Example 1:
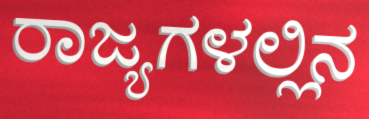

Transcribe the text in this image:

ರಾಜ್ಯಗಳಲ್ಲಿನ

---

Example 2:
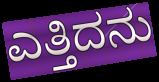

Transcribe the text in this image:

ಎತ್ತಿದನು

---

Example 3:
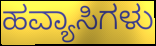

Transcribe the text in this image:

ಹವ್ಯಾಸಿಗಳು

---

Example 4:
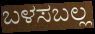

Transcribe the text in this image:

ಬಳಸಬಲ್ಲ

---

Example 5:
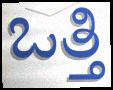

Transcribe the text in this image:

ಒತ್ತಿ